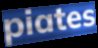
piates